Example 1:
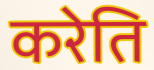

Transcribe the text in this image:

करेति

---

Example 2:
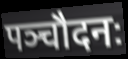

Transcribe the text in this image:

पञ्चौदनः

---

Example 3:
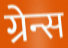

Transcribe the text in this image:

ग्रेन्स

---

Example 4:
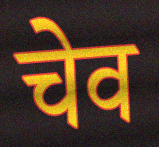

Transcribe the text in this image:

चेव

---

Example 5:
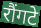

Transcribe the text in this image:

रौंगटे